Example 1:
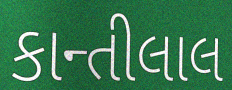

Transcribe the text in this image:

કાન્તીલાલ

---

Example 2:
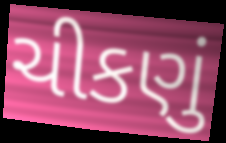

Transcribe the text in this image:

ચીકણું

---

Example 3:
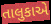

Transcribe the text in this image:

તાલુકાએ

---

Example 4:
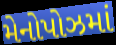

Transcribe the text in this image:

મેનોપોઝમાં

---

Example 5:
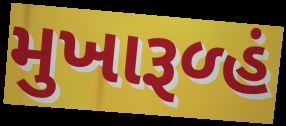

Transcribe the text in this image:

મુખારૂળ્હં